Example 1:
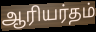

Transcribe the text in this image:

ஆரியர்தம்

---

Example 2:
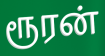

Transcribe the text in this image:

ரூரன்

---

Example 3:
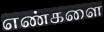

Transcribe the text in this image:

எண்களை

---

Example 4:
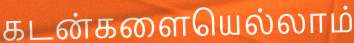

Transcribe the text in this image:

கடன்களையெல்லாம்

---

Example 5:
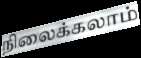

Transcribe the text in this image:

நிலைக்கலாம்